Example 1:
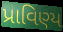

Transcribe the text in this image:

પ્રાવિણ્ય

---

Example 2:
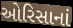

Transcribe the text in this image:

ઓરિસાનાં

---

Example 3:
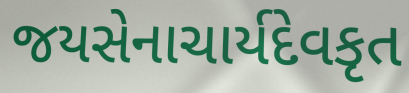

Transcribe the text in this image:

જયસેનાચાર્યદેવકૃત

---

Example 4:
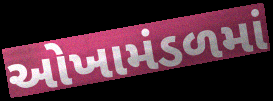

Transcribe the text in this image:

ઓખામંડળમાં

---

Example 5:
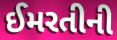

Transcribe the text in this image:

ઈમરતીની